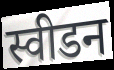
स्वीडन